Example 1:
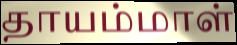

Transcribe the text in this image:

தாயம்மாள்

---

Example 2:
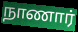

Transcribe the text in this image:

நாணார்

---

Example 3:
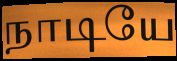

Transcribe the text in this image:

நாடியே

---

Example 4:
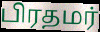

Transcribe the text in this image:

பிரதமர்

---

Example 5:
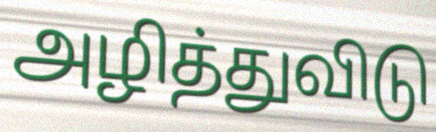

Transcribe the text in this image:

அழித்துவிடு